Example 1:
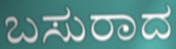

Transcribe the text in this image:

ಬಸುರಾದ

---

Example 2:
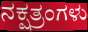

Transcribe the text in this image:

ನಕ್ಷತ್ರಂಗಳು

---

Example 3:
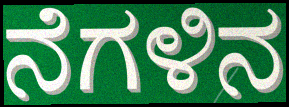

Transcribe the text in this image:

ನೆಗಳಿನ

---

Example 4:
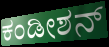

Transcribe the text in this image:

ಕಂಡೀಶನ್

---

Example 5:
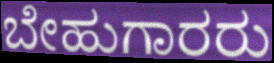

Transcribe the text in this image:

ಬೇಹುಗಾರರು